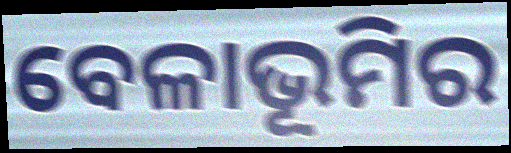
ବେଳାଭୂମିର